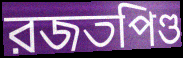
রজতপিণ্ড